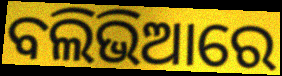
ବଲିଭିଆରେ